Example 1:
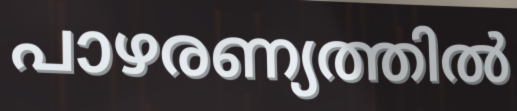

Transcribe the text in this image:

പാഴരണ്യത്തിൽ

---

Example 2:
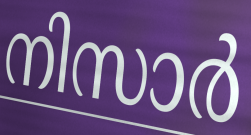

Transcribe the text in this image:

നിസാർ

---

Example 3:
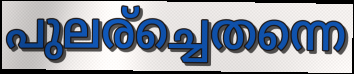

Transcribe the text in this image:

പുലര്ച്ചെതന്നെ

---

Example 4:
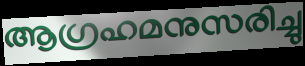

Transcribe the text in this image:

ആഗ്രഹമനുസരിച്ചു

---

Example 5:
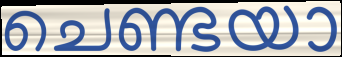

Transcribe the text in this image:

ചെണ്ടയാ